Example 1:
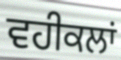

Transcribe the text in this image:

ਵਹੀਕਲਾਂ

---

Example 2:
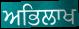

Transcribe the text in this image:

ਅਭਿਲਾਖ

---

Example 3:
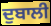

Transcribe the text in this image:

ਦੁਬਾਲੀ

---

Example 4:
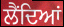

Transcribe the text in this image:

ਲੈਂਦਿਆਂ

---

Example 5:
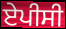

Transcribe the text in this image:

ਏਪੀਸੀ